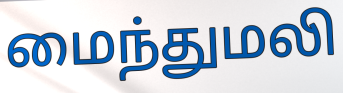
மைந்துமலி